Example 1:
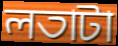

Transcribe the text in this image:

লতাটা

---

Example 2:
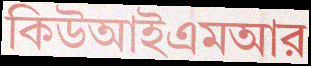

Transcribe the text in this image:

কিউআইএমআর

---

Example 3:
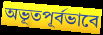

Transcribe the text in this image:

অভূতপূর্বভাবে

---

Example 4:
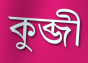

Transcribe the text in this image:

কুব্জী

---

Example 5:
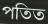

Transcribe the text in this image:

পতিত